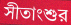
সীতাংশুর